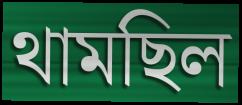
থামছিল